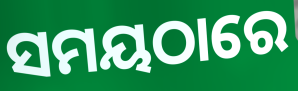
ସମୟଠାରେ